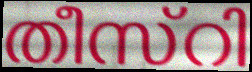
തീസ്റി